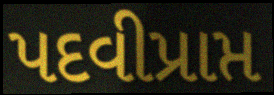
પદવીપ્રાપ્ત